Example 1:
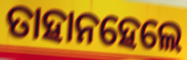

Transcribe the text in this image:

ତାହାନହେଲେ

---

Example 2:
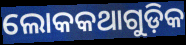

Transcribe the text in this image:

ଲୋକକଥାଗୁଡ଼ିକ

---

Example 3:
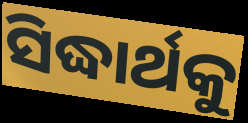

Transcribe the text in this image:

ସିଦ୍ଧାର୍ଥକୁ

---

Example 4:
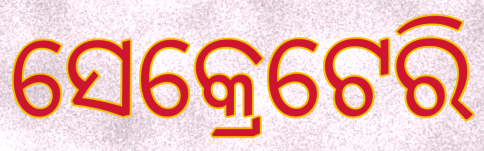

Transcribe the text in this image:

ସେକ୍ରେଟେରି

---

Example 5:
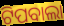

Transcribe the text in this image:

ଟିପବାଲା